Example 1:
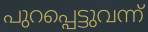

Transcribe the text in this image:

പുറപ്പെട്ടുവന്ന്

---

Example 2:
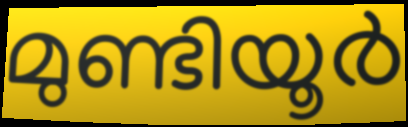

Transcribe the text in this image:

മുണ്ടിയൂർ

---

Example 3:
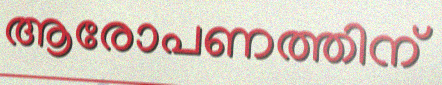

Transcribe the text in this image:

ആരോപണത്തിന്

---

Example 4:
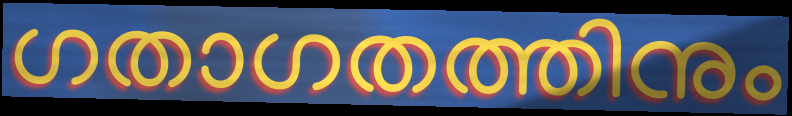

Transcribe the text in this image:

ഗതാഗതത്തിനും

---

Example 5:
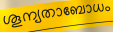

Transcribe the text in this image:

ശൂന്യതാബോധം